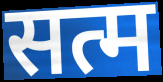
सत्म